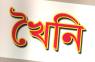
খৈনি